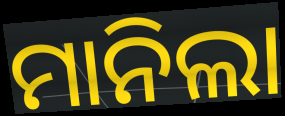
ମାନିଲା